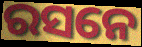
ରସନେ